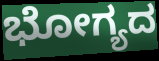
ಭೋಗ್ಯದ